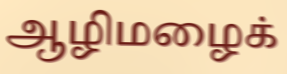
ஆழிமழைக்